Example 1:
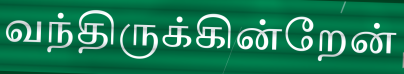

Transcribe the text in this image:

வந்திருக்கின்றேன்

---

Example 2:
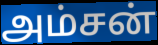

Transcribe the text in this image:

அம்சன்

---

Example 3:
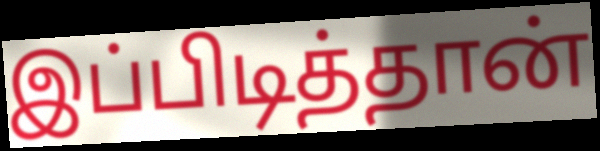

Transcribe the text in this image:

இப்பிடித்தான்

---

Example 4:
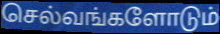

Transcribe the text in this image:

செல்வங்களோடும்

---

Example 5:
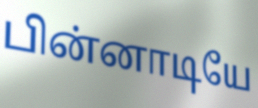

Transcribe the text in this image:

பின்னாடியே